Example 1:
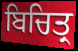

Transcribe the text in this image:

ਬਿਚਿਤ੍ਰ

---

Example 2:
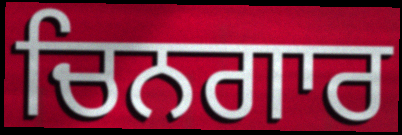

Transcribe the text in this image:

ਚਿਨਗਾਰ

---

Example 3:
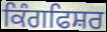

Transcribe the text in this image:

ਕਿੰਗਫਿਸ਼ਰ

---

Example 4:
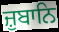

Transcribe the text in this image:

ਜ਼ੁਬਾਨਿ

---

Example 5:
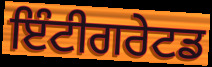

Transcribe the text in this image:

ਇੰਟੀਗਰੇਟਡ